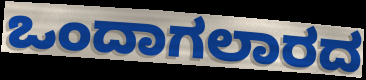
ಒಂದಾಗಲಾರದ